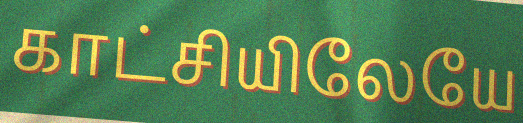
காட்சியிலேயே